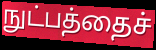
நுட்பத்தைச்